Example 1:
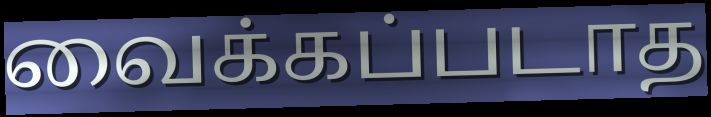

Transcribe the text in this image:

வைக்கப்படாத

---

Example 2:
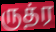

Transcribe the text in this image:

ருத்ர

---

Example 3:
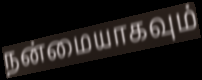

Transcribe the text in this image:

நன்மையாகவும்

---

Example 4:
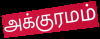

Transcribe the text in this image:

அக்குரமம்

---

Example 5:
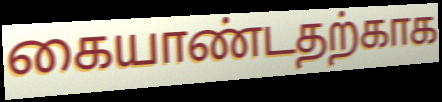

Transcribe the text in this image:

கையாண்டதற்காக